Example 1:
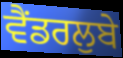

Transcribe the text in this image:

ਵੈਂਡਰਲੁਬੇ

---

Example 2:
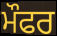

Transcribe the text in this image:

ਮੌਫਰ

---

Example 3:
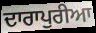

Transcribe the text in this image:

ਦਾਰਾਪੁਰੀਆ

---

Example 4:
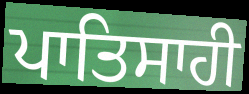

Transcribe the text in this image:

ਪਾਤਿਸਾਹੀ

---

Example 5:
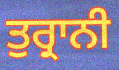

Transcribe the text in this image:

ਤੁਰ੍ਰਾਨੀ